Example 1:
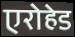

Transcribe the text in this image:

एरोहेड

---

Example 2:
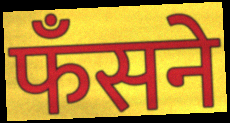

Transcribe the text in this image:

फँसने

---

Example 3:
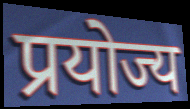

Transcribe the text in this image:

प्रयोज्य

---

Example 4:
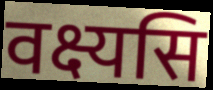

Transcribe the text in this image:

वक्ष्यसि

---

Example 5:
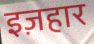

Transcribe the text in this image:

इज़हार